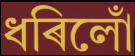
ধৰিলোঁ